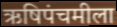
ऋषिपंचमीला